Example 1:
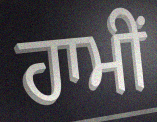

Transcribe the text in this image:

ਹਾਮੀਂ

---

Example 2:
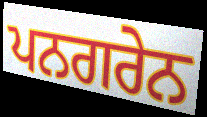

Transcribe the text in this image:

ਪਨਗਰੇਨ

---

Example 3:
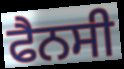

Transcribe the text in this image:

ਫੈਨਸੀ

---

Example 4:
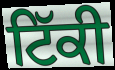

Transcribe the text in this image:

ਟਿੱਕੀ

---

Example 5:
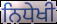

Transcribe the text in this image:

ਨਿਧੇਖੀ